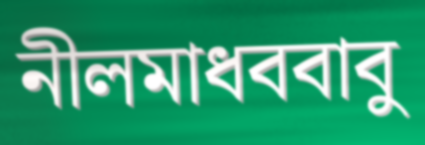
নীলমাধববাবু